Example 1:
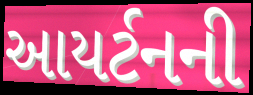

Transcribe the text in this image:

આયર્ટનની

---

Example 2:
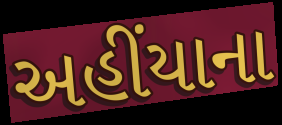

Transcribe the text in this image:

અહીંયાના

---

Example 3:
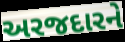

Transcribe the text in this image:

અરજદારને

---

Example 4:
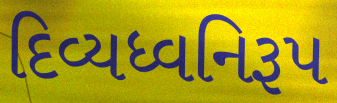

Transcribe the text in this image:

દિવ્યધ્વનિરૂપ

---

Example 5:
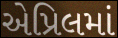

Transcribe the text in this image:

એપ્રિલમાં